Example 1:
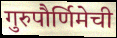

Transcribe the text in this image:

गुरुपौर्णिमेची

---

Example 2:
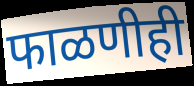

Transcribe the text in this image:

फाळणीही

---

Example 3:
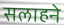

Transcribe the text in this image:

सलाहने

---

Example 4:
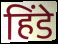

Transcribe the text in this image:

हिंडे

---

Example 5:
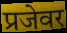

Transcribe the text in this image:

प्रजेवर